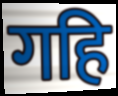
गहि